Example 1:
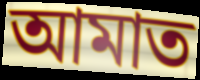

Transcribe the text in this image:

আমাত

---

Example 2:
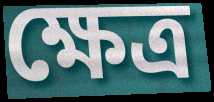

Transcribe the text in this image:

ক্ষেত্ৰ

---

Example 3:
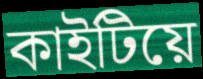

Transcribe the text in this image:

কাইটিয়ে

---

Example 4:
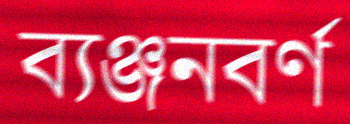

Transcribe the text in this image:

ব্যঞ্জনবৰ্ণ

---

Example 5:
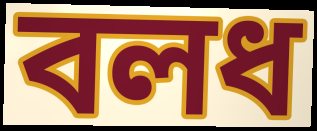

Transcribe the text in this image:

বলধ